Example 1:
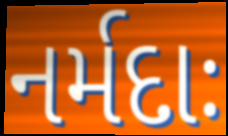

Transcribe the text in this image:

નર્મદાઃ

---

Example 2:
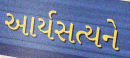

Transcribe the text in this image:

આર્યસત્યને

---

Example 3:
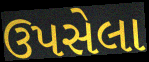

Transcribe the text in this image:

ઉપસેલા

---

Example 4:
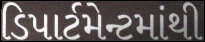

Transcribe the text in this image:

ડિપાર્ટમેન્ટમાંથી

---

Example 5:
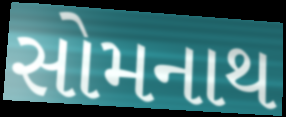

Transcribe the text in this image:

સોમનાથ